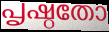
പൃഷ്ഠതോ